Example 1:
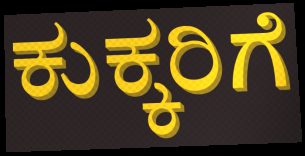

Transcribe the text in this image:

ಕುಕ್ಕರಿಗೆ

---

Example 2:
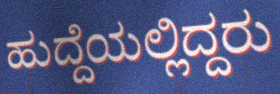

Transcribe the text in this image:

ಹುದ್ದೆಯಲ್ಲಿದ್ದರು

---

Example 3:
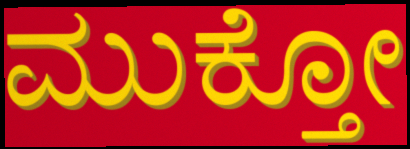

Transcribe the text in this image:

ಮುಕ್ತೋ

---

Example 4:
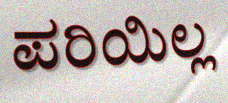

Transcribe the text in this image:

ಪರಿಯಿಲ್ಲ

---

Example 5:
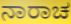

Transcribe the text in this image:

ನಾರಾಚ